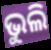
ଭୁଲି